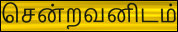
சென்றவனிடம்